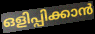
ഒളിപ്പിക്കാൻ